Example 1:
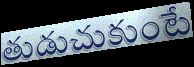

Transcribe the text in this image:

తుడుచుకుంటే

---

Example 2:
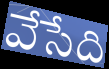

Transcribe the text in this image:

వేసేది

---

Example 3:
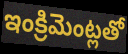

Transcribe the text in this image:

ఇంక్రిమెంట్లతో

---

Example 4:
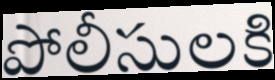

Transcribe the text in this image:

పోలీసులకి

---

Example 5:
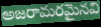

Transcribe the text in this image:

అజరామరమైనవి